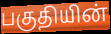
பகுதியின்